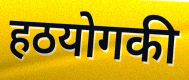
हठयोगकी